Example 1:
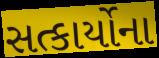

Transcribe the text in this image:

સત્કાર્યોના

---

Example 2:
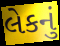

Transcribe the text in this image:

લેકનું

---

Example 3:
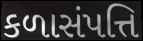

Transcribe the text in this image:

કળાસંપત્તિ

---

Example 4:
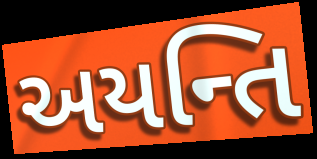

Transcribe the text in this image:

અયન્તિ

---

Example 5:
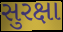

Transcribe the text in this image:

સુરક્ષા